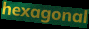
hexagonal